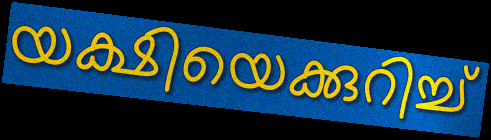
യക്ഷിയെക്കുറിച്ച്